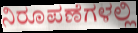
ನಿರೂಪಣೆಗಳಲ್ಲಿ